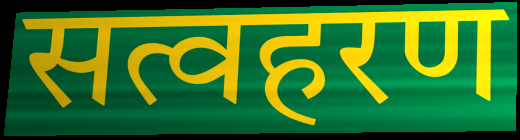
सत्वहरण